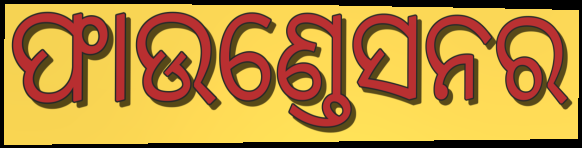
ଫାଉଣ୍ଡେସନର